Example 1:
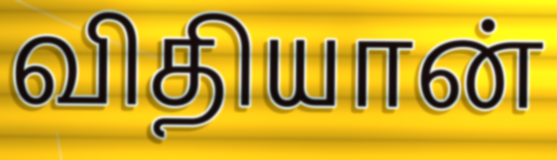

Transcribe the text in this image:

விதியான்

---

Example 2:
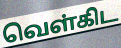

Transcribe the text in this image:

வெள்கிட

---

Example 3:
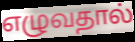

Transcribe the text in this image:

எழுவதால்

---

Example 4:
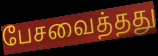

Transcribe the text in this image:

பேசவைத்தது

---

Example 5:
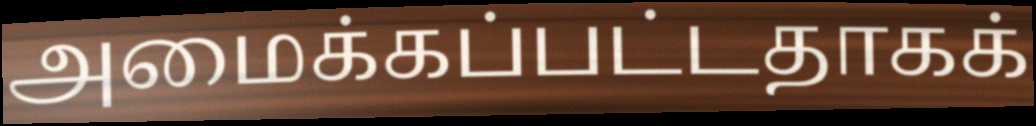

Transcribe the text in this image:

அமைக்கப்பட்டதாகக்